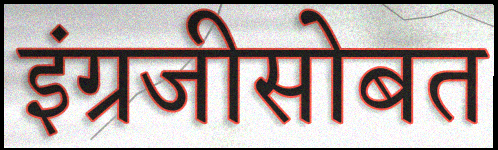
इंग्रजीसोबत